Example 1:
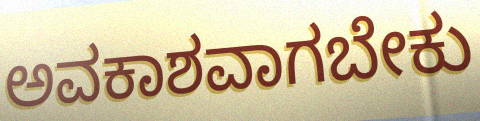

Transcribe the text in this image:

ಅವಕಾಶವಾಗಬೇಕು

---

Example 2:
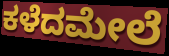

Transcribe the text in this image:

ಕಳೆದಮೇಲೆ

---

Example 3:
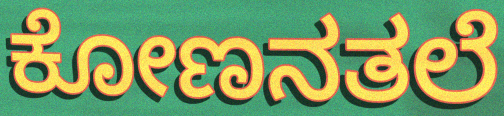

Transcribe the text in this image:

ಕೋಣನತಲೆ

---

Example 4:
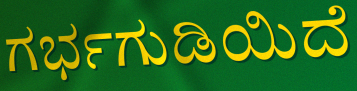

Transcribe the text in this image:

ಗರ್ಭಗುಡಿಯಿದೆ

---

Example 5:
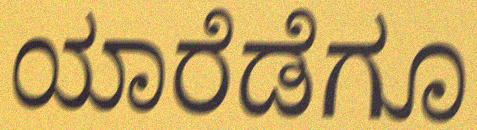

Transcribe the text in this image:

ಯಾರೆಡೆಗೂ